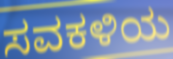
ಸವಕಳಿಯ